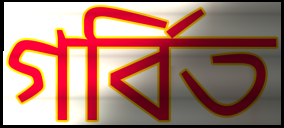
গর্বিত